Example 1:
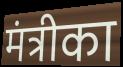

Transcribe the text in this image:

मंत्रीका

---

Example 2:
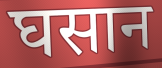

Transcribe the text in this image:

घसान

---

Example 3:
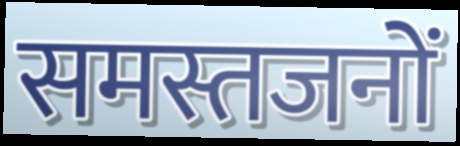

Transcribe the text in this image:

समस्तजनों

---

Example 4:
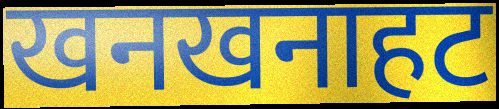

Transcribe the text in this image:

खनखनाहट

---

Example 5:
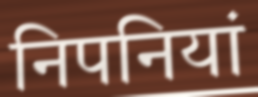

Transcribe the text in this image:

निपनियां